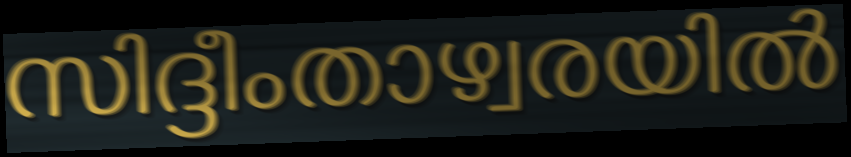
സിദ്ദീംതാഴ്വരയിൽ